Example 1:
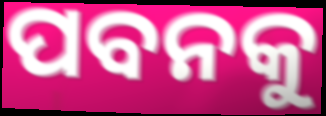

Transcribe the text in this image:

ପବନକୁ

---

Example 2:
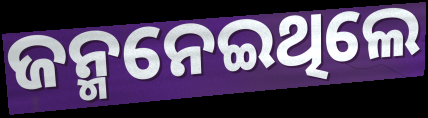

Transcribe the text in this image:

ଜନ୍ମନେଇଥିଲେ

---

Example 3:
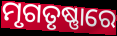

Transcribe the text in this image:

ମୃଗତୃଷ୍ଣାରେ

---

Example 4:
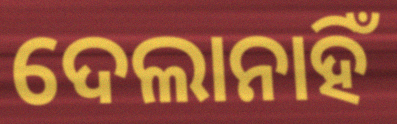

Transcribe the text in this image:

ଦେଲାନାହିଁ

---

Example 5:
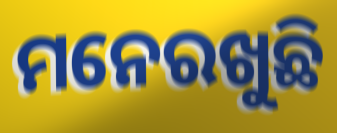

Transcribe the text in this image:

ମନେରଖୁଛି